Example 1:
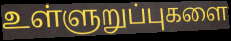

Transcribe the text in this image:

உள்ளுறுப்புகளை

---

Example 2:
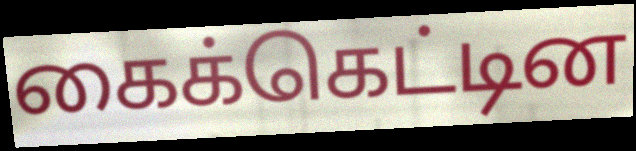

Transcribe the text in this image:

கைக்கெட்டின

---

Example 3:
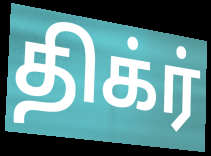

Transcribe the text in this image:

திக்ர்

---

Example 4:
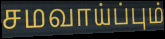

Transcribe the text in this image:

சமவாய்ப்பும்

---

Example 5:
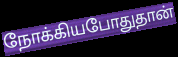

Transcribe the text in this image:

நோக்கியபோதுதான்